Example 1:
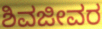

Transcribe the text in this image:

ಶಿವಜೀವರ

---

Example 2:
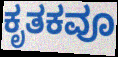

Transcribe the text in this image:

ಕೃತಕವೂ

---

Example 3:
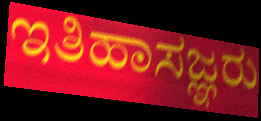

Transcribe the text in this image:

ಇತಿಹಾಸಜ್ಞರು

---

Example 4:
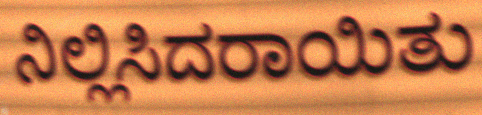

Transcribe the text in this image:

ನಿಲ್ಲಿಸಿದರಾಯಿತು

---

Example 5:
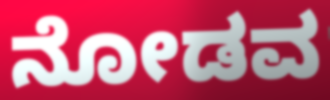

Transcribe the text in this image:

ನೋಡವ